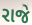
રાજે